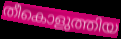
തീകൊളുത്തിയ